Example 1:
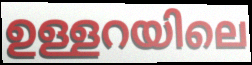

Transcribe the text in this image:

ഉള്ളറയിലെ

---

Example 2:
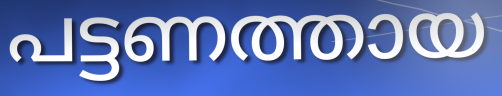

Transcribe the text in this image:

പട്ടണത്തായ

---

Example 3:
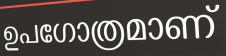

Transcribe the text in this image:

ഉപഗോത്രമാണ്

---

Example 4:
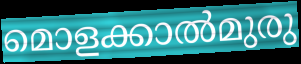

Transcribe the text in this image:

മൊളക്കാൽമുരു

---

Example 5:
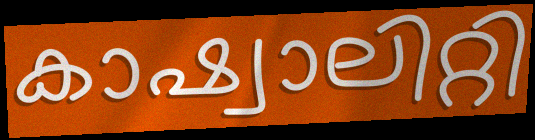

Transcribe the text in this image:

കാഷ്വാലിറ്റി